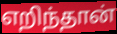
எறிந்தான்